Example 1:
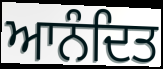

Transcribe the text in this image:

ਆਨੰਦਿਤ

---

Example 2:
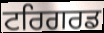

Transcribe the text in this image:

ਟਰਿਗਰਡ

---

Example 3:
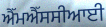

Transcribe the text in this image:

ਐੱਮਐੱਸਸੀਆਈ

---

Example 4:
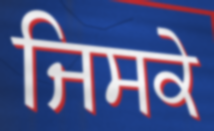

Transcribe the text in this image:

ਜਿਸਕੇ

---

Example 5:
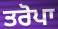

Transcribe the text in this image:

ਤਰੋਪਾ